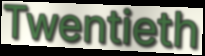
Twentieth